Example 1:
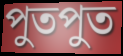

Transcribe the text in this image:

পুতপুত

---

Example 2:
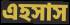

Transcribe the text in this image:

এহসাস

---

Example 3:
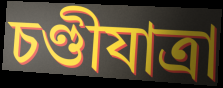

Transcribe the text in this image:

চণ্ডীযাত্রা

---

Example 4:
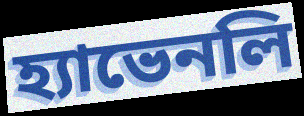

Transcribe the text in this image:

হ্যাভেনলি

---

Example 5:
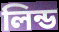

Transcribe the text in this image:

লিন্ড